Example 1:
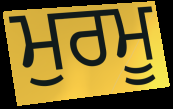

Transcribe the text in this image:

ਮੁਰਮੂ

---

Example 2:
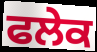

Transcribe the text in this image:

ਫਲੇਕ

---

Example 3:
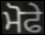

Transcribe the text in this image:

ਮੋਫੇ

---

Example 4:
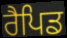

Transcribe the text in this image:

ਰੈਪਿਡ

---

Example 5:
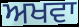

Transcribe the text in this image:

ਅਖਵਾ